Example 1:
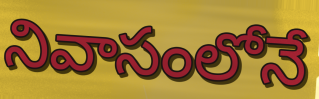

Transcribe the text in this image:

నివాసంలోనే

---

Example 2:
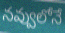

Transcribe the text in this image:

నవ్వులోనే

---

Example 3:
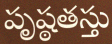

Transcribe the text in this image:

పృష్ఠతస్తు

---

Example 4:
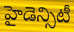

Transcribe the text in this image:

హైడెన్సిటీ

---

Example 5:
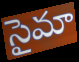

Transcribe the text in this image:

సైమా